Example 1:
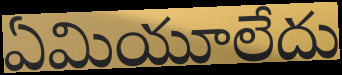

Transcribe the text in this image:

ఏమియూలేదు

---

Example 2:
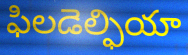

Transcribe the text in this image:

ఫిలడెల్ఫియా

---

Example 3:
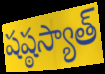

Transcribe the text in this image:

షష్ఠస్యాత్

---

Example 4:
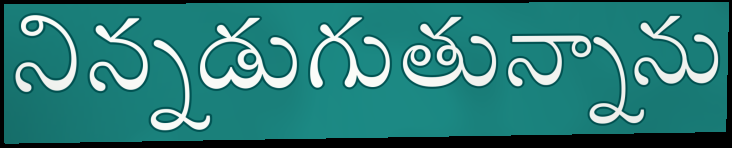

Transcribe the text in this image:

నిన్నడుగుతున్నాను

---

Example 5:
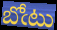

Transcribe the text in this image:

బోఁటు